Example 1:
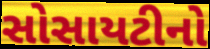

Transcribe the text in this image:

સોસાયટીનો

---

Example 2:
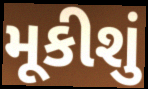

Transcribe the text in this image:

મૂકીશું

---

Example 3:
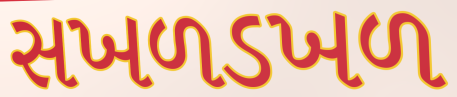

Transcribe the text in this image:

સખળડખળ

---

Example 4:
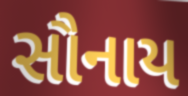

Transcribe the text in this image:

સૌનાય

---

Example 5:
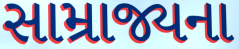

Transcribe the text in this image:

સામ્રાજ્યના